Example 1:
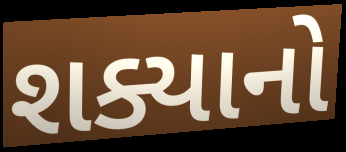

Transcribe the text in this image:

શક્યાનો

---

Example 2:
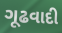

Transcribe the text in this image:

ગૂઢવાદી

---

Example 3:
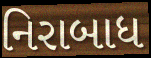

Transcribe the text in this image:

નિરાબાધ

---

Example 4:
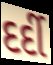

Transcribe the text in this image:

દર્દી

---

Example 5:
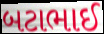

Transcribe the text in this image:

બટાભાઈ